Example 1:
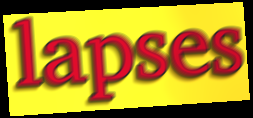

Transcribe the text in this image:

lapses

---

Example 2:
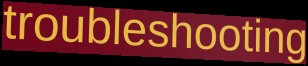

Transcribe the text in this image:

troubleshooting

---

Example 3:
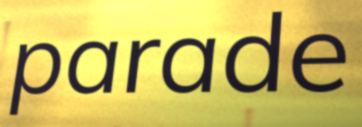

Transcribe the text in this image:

parade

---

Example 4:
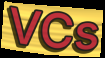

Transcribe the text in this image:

VCs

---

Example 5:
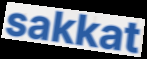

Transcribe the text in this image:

sakkat